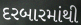
દરબારમાંથી